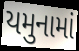
યમુનામાં